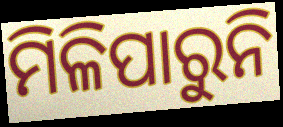
ମିଳିପାରୁନି